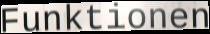
Funktionen